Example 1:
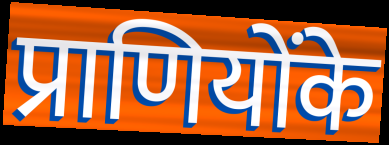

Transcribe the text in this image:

प्राणियोंके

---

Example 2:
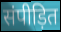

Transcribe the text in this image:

संपीड़ित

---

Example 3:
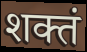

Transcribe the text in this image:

शक्तं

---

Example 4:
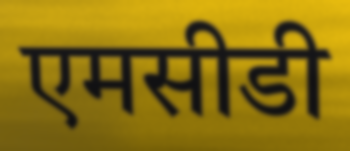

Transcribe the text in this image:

एमसीडी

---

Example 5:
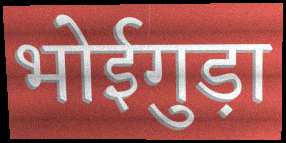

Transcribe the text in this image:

भोईगुड़ा